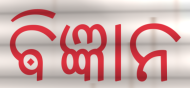
ଵିଜ୍ଞାନ